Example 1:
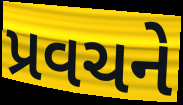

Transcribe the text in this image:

પ્રવચને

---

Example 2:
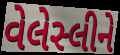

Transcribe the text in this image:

વેલેસ્લીને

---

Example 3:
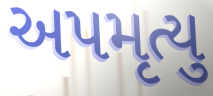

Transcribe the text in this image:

અપમૃત્યુ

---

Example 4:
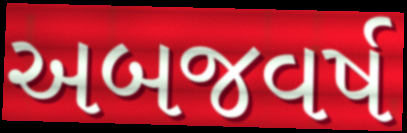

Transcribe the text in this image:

અબજવર્ષ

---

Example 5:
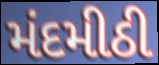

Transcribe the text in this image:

મંદમીઠી